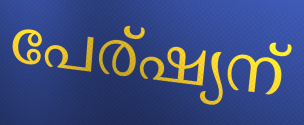
പേര്ഷ്യന്